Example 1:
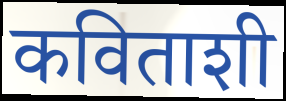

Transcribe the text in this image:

कविताशी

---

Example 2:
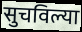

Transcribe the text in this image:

सुचविल्या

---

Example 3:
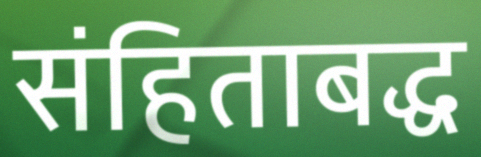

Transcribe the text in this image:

संहिताबद्ध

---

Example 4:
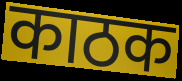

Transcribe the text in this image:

काठक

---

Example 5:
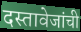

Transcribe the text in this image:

दस्तावेजांची